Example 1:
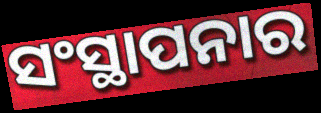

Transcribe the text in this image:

ସଂସ୍ଥାପନାର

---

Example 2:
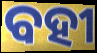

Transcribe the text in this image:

ବହୀ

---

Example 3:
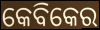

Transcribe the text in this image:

କେବିକେର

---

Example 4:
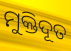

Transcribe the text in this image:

ମୁକ୍ତିଦୂତ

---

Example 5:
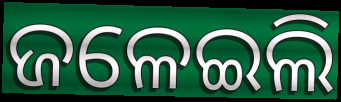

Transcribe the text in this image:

ଜଳେଇଲି